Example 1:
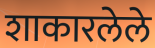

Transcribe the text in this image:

शाकारलेले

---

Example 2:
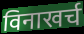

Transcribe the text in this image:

विनाखर्च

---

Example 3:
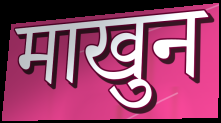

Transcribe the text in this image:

माखुन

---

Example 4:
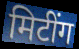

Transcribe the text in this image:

मिटींग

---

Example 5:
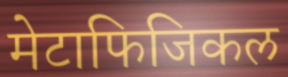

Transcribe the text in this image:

मेटाफिजिकल